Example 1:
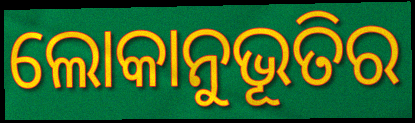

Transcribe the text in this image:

ଲୋକାନୁଭୂତିର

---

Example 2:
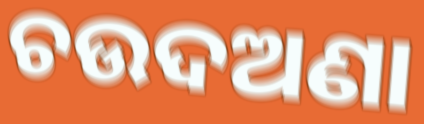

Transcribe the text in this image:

ଚଉଦଅଣା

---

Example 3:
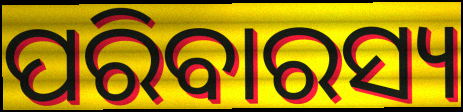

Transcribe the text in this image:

ପରିବାରସ୍ୟ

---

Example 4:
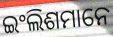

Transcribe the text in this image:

ଇଂଲିଶମାନେ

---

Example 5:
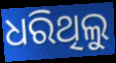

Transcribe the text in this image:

ଧରିଥିଲୁ